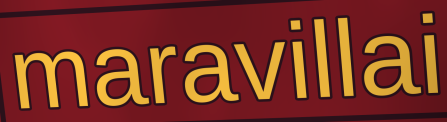
maravillai